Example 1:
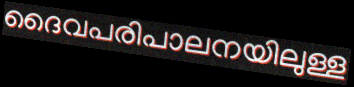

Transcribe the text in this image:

ദൈവപരിപാലനയിലുള്ള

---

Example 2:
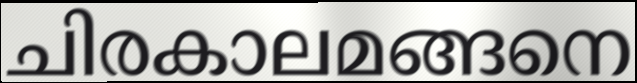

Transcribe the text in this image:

ചിരകാലമങ്ങനെ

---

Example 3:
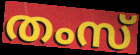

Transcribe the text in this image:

തംസ്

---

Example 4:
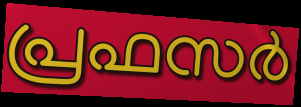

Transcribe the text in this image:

പ്രഫസർ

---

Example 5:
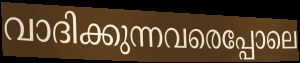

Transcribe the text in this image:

വാദിക്കുന്നവരെപ്പോലെ